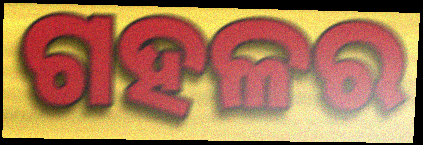
ଗହଳର